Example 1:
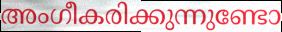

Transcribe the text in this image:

അംഗീകരിക്കുന്നുണ്ടോ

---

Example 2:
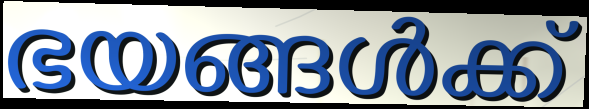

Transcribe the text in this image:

ഭയങ്ങൾക്ക്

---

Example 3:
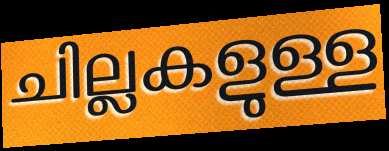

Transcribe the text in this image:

ചില്ലകളുള്ള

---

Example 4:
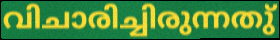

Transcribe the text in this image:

വിചാരിച്ചിരുന്നതു്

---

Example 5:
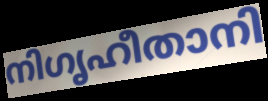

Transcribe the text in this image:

നിഗൃഹീതാനി